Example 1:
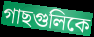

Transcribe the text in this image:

গাছগুলিকে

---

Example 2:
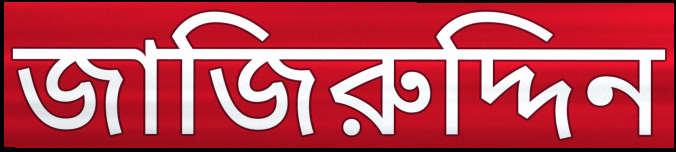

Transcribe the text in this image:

জাজিরুদ্দিন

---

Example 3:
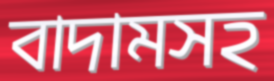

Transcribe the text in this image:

বাদামসহ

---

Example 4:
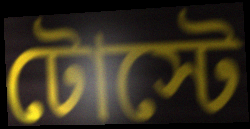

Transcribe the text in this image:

টোস্টে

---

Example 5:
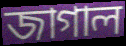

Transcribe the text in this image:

জাগাল